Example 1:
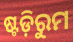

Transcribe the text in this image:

ଷ୍ଟଡ଼ିରୁମ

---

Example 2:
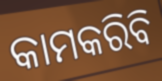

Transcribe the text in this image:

କାମକରିବି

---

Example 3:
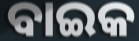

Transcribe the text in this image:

ବାଇକ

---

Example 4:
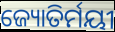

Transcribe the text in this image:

ଜ୍ୟୋତିର୍ମୟୀ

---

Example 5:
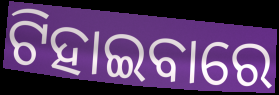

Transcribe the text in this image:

ଟିହାଇବାରେ